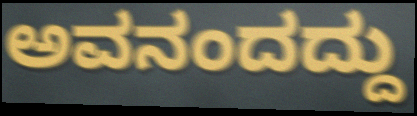
ಅವನಂದದ್ದು